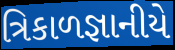
ત્રિકાળજ્ઞાનીયે